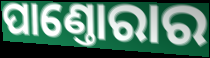
ପାଣ୍ତୋରାର